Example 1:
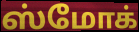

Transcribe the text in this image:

ஸ்மோக்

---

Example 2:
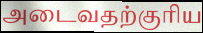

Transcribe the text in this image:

அடைவதற்குரிய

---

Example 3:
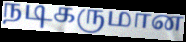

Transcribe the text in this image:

நடிகருமான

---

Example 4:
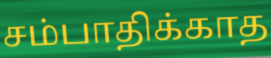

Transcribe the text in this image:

சம்பாதிக்காத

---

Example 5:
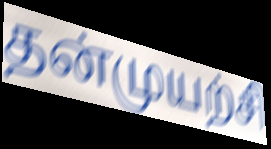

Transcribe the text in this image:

தன்முயற்சி